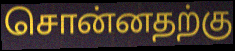
சொன்னதற்கு